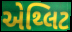
એથ્લિટ